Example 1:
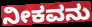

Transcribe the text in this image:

ನೀಕವನು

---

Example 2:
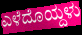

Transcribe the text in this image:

ಎಳೆದೊಯ್ದಳು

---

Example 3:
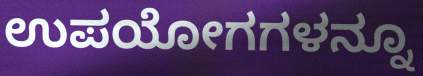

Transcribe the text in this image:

ಉಪಯೋಗಗಳನ್ನೂ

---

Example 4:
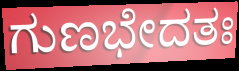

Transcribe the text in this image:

ಗುಣಭೇದತಃ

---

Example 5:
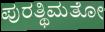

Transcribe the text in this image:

ಪುರತ್ಥಿಮತೋ